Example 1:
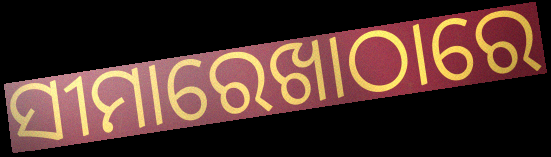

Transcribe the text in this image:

ସୀମାରେଖାଠାରେ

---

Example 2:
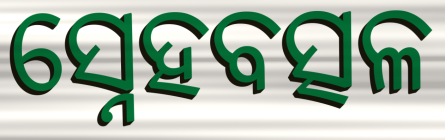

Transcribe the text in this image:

ସ୍ନେହବତ୍ସଳ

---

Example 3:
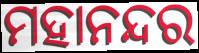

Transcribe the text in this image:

ମହାନନ୍ଦର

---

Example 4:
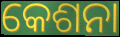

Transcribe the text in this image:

କେଶନା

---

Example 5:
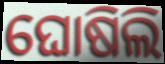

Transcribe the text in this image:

ଘୋଷିଲି